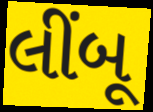
લીંબૂ